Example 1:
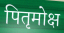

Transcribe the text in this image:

पितृमोक्ष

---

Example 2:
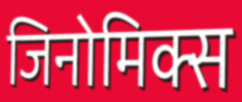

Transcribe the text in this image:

जिनोमिक्स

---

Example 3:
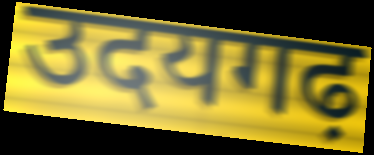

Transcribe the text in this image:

उदयगढ़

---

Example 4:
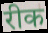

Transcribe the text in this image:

रीक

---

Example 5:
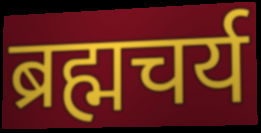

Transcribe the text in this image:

ब्रह्मचर्य